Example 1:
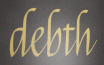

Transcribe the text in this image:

debth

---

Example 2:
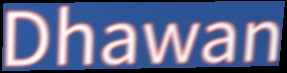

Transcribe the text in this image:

Dhawan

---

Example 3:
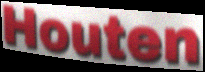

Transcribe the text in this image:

Houten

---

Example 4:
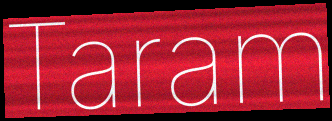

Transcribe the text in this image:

Taram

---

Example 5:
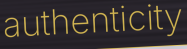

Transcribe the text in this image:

authenticity